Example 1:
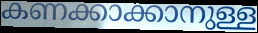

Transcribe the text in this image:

കണക്കാക്കാനുള്ള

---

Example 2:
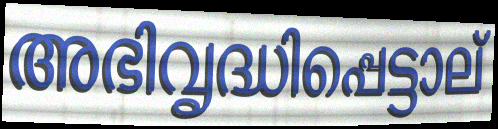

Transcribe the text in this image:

അഭിവൃദ്ധിപ്പെട്ടാല്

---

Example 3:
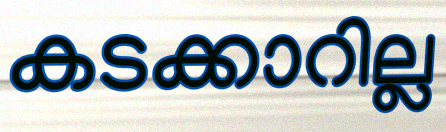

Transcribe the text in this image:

കടക്കാറില്ല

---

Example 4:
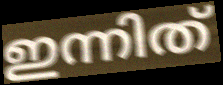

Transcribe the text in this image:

ഇന്നിത്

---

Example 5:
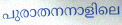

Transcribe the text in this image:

പുരാതനനാളിലെ